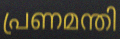
പ്രണമന്തി